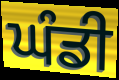
ਘੰਡੀ